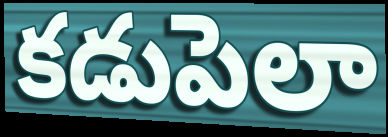
కడుపెలా